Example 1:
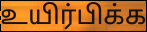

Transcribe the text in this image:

உயிர்பிக்க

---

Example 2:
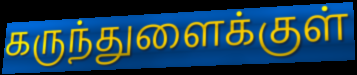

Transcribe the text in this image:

கருந்துளைக்குள்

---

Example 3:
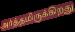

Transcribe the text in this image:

அர்த்தமிருக்கிறது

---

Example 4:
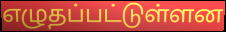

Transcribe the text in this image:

எழுதப்பட்டுள்ளன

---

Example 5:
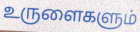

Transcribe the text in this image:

உருளைகளும்